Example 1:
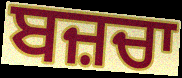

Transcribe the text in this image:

ਬਜ਼ਚਾ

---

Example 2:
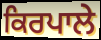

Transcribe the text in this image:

ਕਿਰਪਾਲੇ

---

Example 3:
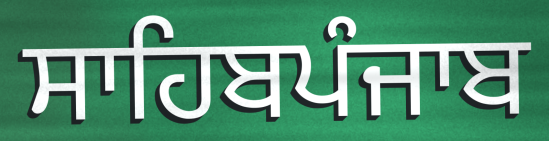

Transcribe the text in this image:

ਸਾਹਿਬਪੰਜਾਬ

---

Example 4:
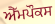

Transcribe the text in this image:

ਐੱਮਪੌਕਸ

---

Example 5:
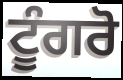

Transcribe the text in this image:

ਟੂੰਗਰੋ